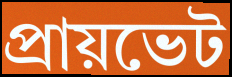
প্রায়ভেট